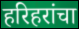
हरिहरांचा